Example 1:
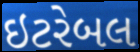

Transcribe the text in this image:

ઇટરેબલ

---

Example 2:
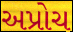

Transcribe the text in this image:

અપ્રોચ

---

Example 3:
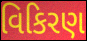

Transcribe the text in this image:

વિકિરણ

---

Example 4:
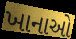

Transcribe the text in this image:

ખાનાઓ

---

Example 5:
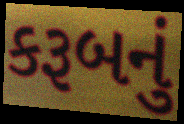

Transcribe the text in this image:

કરૂબનું